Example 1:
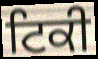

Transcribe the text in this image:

ਟਿਕੀ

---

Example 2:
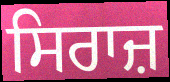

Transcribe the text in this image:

ਸਿਰਾਜ਼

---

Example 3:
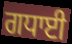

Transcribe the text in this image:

ਗਧਾਈ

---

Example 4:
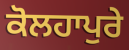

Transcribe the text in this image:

ਕੋਲਹਾਪੁਰੇ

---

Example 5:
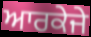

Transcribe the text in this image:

ਆਰਕੇਜੇ